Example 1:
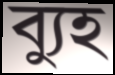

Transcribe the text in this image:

ব্যুহ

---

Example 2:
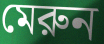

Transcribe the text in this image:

মেরুন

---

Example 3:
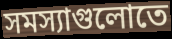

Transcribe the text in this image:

সমস্যাগুলোতে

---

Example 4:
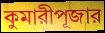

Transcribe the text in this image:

কুমারীপূজার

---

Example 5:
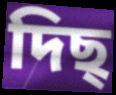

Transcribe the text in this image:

দিছ্